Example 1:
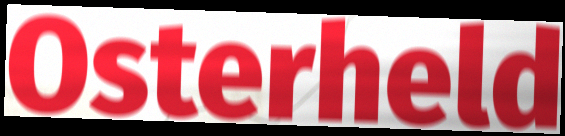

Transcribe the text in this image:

Osterheld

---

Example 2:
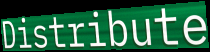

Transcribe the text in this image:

Distribute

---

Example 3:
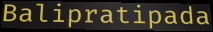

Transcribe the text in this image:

Balipratipada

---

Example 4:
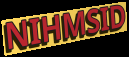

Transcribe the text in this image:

NIHMSID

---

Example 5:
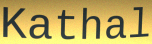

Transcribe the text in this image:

Kathal